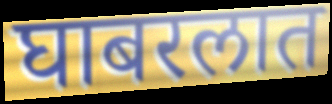
घाबरलात